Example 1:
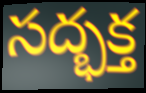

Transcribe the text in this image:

సద్భక్త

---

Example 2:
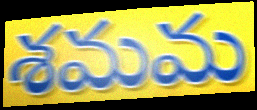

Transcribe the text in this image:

శమమ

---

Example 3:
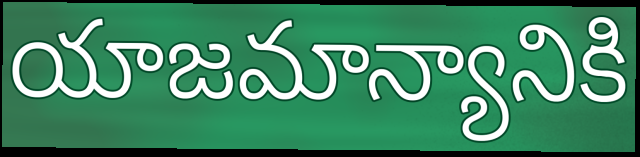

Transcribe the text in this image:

యాజమాన్యానికి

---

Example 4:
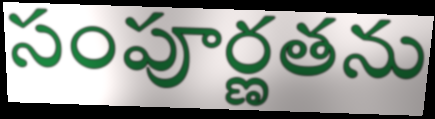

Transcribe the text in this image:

సంపూర్ణతను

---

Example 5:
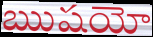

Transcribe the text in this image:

ఋషయో